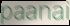
paanai